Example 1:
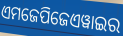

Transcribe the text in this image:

ଏମଜେପିଜେଏୱାଇର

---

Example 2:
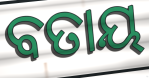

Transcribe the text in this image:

ବତାୟ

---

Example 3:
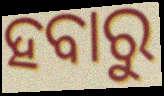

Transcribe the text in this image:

ହବାରୁ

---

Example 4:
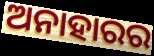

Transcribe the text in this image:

ଅନାହାରର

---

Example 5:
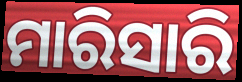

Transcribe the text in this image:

ମାରିସାରି